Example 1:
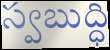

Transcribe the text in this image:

స్వబుద్ధి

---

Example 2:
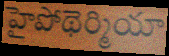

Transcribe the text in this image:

హైపోథెర్మియా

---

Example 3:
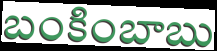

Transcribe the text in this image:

బంకింబాబు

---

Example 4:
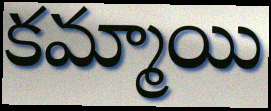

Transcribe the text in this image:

కమ్మాయి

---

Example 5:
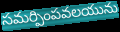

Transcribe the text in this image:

సమర్పింపవలయును